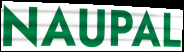
NAUPAL